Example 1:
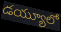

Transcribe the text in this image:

డయ్యూలో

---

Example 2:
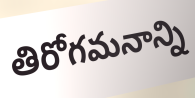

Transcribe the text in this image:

తిరోగమనాన్ని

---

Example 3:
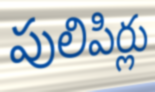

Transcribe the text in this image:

పులిపిర్లు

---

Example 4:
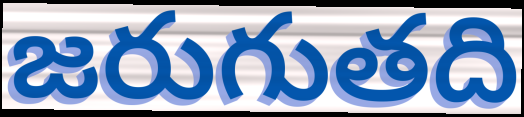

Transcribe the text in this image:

జరుగుతది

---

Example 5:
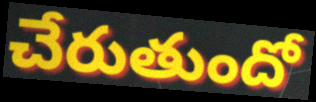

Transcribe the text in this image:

చేరుతుందో